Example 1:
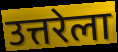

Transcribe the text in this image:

उत्तरेला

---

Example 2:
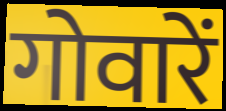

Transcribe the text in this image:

गोवारें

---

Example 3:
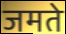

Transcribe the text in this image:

जमते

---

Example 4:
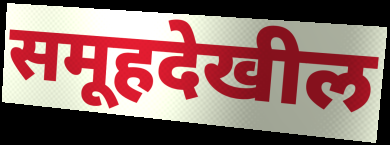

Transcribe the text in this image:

समूहदेखील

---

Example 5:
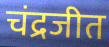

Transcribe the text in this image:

चंद्रजीत